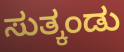
ಸುತ್ಕಂಡು